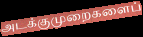
அடக்குமுறைகளைப்